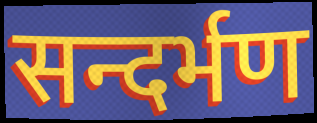
सन्दर्भण